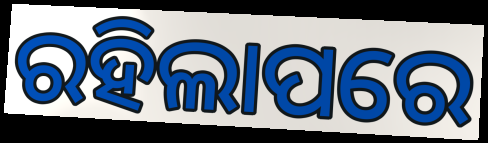
ରହିଲାପରେ